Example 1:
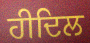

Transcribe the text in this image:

ਹੀਦਿਲ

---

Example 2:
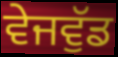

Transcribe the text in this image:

ਵੇਜਵੁੱਡ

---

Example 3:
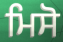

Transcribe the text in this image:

ਮਿਸੋ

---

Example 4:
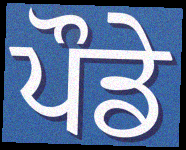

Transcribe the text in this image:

ਪੌਡੇ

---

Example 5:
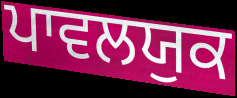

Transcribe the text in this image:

ਪਾਵਲਯੁਕ